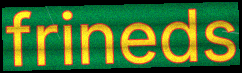
frineds